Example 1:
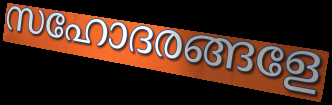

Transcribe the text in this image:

സഹോദരങ്ങളേ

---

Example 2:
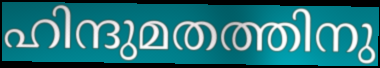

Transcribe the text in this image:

ഹിന്ദുമതത്തിനു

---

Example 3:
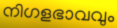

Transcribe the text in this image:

നിഗളഭാവവും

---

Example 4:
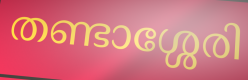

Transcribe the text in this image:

തണ്ടാശ്ശേരി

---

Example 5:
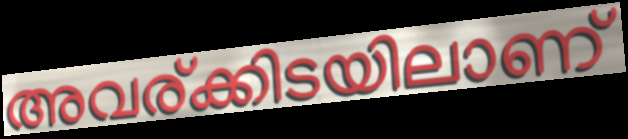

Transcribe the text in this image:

അവര്ക്കിടയിലാണ്